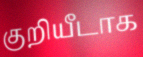
குறியீடாக